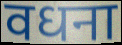
वधना